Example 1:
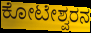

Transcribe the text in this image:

ಕೋಟೇಶ್ವರನ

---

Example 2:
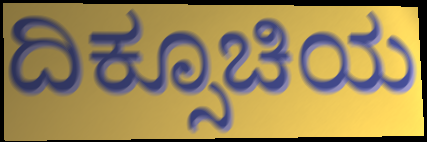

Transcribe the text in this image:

ದಿಕ್ಸೂಚಿಯ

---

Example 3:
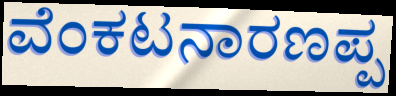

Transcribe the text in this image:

ವೆಂಕಟನಾರಣಪ್ಪ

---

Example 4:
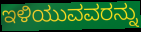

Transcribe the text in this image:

ಇಳಿಯುವವರನ್ನು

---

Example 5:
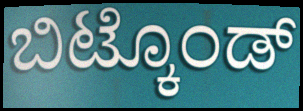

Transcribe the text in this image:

ಬಿಟ್ಕೊಂಡ್